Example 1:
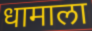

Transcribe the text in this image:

धामाला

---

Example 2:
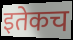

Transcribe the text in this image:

इतेकच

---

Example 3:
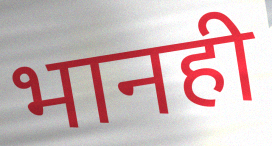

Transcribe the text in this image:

भानही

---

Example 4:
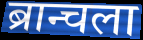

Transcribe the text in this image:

ब्रान्चला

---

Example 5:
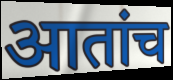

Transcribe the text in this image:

आतांच